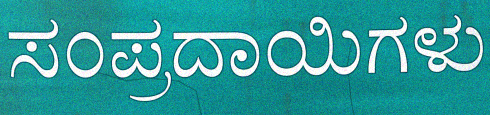
ಸಂಪ್ರದಾಯಿಗಳು